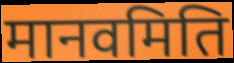
मानवमिति